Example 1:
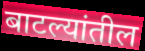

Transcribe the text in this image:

बाटल्यांतील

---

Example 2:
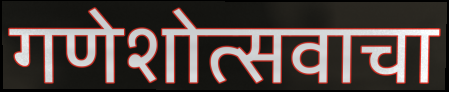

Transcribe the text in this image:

गणेशोत्सवाचा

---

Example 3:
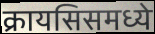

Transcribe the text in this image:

क्रायसिसमध्ये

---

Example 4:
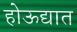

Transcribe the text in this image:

होऊद्यात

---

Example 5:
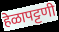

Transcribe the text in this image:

हेळापट्टणी